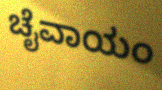
ಚೈವಾಯಂ